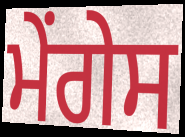
ਮੇਂਗੇਸ